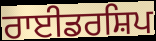
ਰਾਈਡਰਸ਼ਿਪ